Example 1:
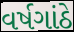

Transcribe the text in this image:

વર્ષગાંઠે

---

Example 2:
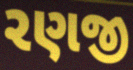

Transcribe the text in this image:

રણજી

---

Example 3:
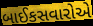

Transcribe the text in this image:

બાઈકસવારોએ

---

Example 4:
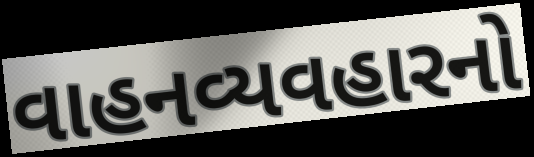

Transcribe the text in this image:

વાહનવ્યવહારનો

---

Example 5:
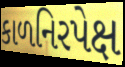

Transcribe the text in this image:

કાળનિરપેક્ષ